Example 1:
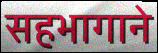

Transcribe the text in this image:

सहभागाने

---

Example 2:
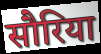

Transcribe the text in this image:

सौरिया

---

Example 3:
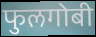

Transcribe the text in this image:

फुलगोबी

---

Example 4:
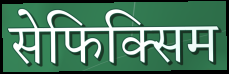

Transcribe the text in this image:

सेफिक्सिम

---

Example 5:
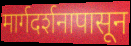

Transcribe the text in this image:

मार्गदर्शनापासून